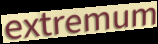
extremum